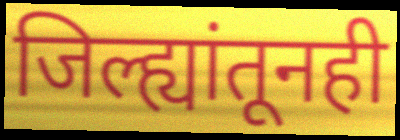
जिल्ह्यांतूनही